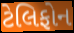
ટેલિફોન